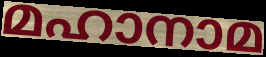
മഹാനാമ